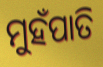
ମୁହଁପାତି